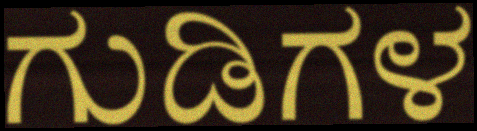
ಗುಡಿಗಳ